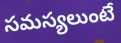
సమస్యలుంటే